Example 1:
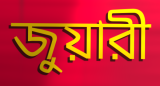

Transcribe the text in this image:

জুয়ারী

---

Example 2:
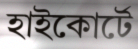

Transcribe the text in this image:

হাইকোর্টে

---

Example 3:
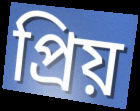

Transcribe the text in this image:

প্রিয়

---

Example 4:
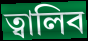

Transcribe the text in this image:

ত্বালিব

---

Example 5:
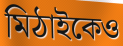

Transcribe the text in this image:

মিঠাইকেও